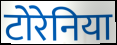
टोरेनिया